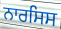
ਨਾਰਸਿਸ